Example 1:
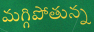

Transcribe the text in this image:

మగ్గిపోతున్న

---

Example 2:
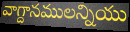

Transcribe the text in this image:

వాగ్దానములన్నియు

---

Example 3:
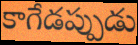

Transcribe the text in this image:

కాగేడప్పుడు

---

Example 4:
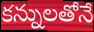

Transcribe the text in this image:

కన్నులతోనే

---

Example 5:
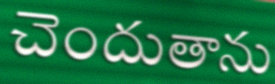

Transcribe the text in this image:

చెందుతాను